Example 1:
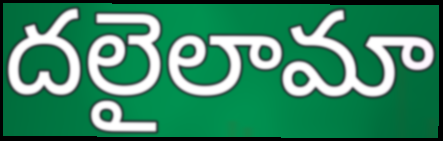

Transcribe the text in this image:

దలైలామా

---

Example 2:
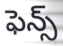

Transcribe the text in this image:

ఫెన్స్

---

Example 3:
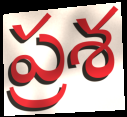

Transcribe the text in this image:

ప్రశ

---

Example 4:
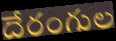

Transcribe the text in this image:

దేరంగుల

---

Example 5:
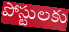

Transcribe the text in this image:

పోస్టులకు